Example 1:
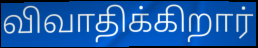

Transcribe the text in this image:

விவாதிக்கிறார்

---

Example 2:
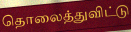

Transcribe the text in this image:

தொலைத்துவிட்டு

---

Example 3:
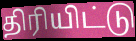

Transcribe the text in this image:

திரியிட்டு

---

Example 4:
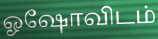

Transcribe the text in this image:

ஓஷோவிடம்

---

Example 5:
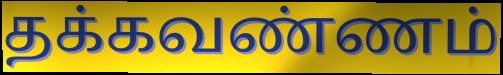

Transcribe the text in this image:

தக்கவண்ணம்